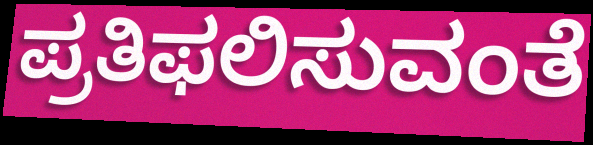
ಪ್ರತಿಫಲಿಸುವಂತೆ